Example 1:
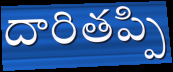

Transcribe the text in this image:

దారితప్పి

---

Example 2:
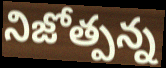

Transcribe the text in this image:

నిజోత్పన్న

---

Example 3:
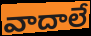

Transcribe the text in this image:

వాదాలే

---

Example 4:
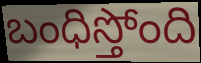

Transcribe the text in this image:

బంధిస్తోంది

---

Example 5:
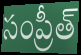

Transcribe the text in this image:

సంప్రీత్